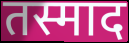
तस्माद